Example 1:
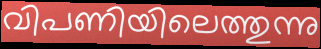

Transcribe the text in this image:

വിപണിയിലെത്തുന്നു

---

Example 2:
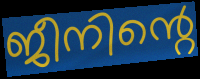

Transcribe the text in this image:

ജീനിന്റെ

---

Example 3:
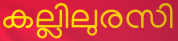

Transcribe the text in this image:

കല്ലിലുരസി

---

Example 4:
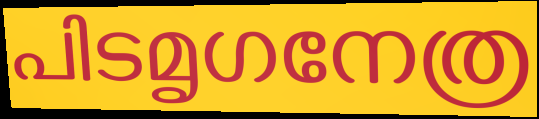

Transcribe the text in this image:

പിടമൃഗനേത്ര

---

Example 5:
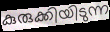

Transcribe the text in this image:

കുരുക്കിയിടുന്ന